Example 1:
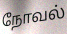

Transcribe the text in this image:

நோவல்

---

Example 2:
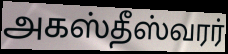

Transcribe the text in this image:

அகஸ்தீஸ்வரர்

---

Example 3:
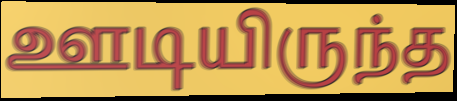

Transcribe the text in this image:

ஊடியிருந்த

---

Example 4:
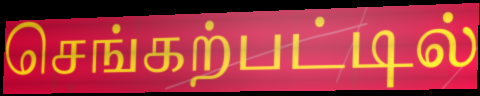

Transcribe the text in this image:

செங்கற்பட்டில்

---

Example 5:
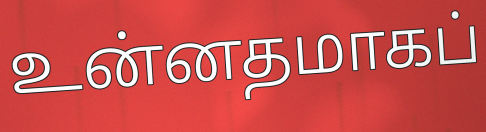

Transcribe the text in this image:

உன்னதமாகப்